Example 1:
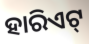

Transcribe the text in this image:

ହାରିଏଟ୍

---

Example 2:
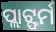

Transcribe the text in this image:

ପ୍ଲାଟ୍ଫର୍ମ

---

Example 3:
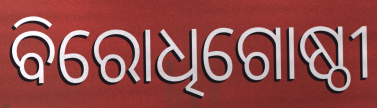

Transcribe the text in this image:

ବିରୋଧିଗୋଷ୍ଠୀ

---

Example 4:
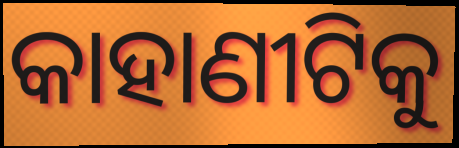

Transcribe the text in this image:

କାହାଣୀଟିକୁ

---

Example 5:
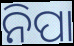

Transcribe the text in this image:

ନିପା